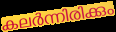
കലർന്നിരിക്കും